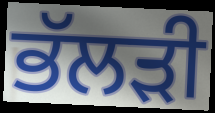
ਭੱਲੜੀ